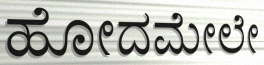
ಹೋದಮೇಲೇ